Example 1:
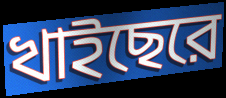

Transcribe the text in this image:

খাইছেরে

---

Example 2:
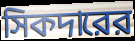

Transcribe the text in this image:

সিকদারের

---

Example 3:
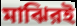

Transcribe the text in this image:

মাঝিরই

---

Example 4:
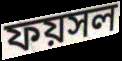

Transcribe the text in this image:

ফয়সল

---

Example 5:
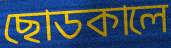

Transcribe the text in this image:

ছোডকালে